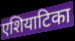
एशियाटिका